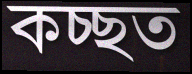
কচ্ছত